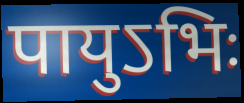
पायुऽभिः